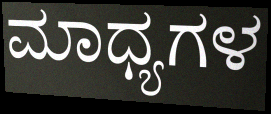
ಮಾಧ್ಯಗಳ